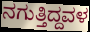
ನಗುತ್ತಿದ್ದವಳ